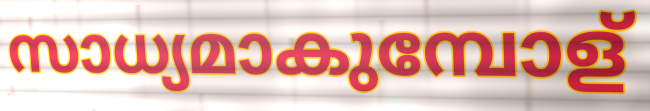
സാധ്യമാകുമ്പോള്